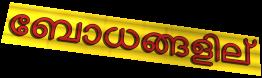
ബോധങ്ങളില്